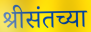
श्रीसंतच्या